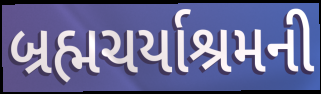
બ્રહ્મચર્યાશ્રમની